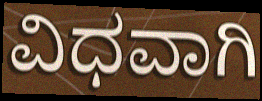
ವಿಧವಾಗಿ